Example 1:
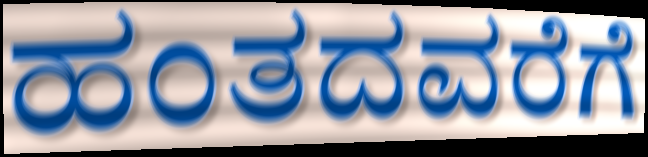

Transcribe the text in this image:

ಹಂತದವರೆಗೆ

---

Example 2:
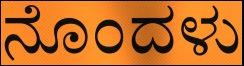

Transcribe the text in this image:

ನೊಂದಳು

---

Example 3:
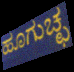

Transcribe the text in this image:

ಹೂಗುಚ್ಛ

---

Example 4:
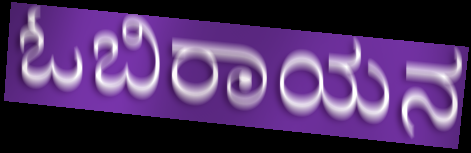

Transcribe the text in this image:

ಓಬಿರಾಯನ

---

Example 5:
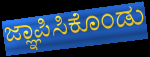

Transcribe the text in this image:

ಜ್ಞಾಪಿಸಿಕೊಂಡು